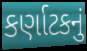
કર્ણાટકનું